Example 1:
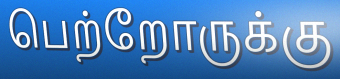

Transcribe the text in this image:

பெற்றோருக்கு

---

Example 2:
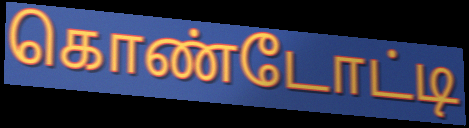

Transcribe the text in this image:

கொண்டோட்டி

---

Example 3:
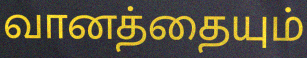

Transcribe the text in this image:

வானத்தையும்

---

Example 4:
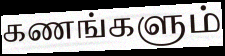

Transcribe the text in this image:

கணங்களும்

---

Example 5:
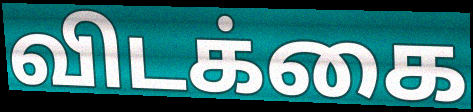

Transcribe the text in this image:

விடக்கை